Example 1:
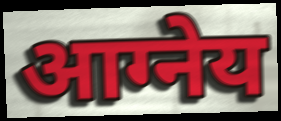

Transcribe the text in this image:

आग्नेय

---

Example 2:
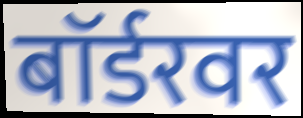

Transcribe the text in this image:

बॉर्डरवर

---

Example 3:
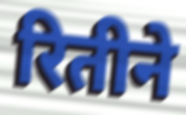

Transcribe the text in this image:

रितीने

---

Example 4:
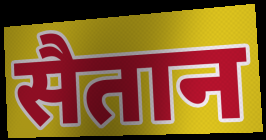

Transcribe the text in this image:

सैतान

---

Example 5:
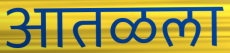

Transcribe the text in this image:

आतळला